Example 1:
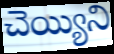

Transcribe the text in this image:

చెయ్యిని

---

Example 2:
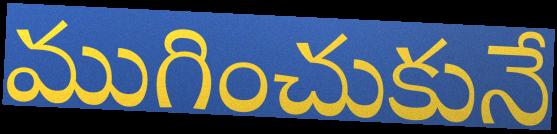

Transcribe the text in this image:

ముగించుకునే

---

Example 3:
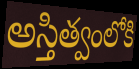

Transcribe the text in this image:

అస్తిత్వంలోకి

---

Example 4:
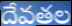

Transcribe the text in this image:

దేవతల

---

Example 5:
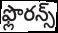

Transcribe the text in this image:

ఫ్లొరన్స్